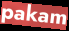
pakam